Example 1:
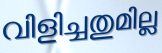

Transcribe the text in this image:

വിളിച്ചതുമില്ല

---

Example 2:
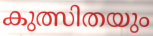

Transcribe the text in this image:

കുത്സിതയും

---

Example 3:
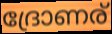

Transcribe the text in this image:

ദ്രോണര്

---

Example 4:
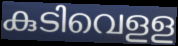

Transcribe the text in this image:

കുടിവെളള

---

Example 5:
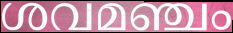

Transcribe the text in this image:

ശവമഞ്ചം